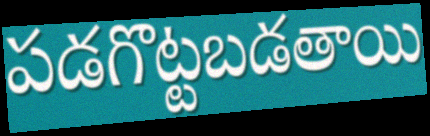
పడగొట్టబడతాయి